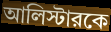
আলিস্টারকে